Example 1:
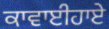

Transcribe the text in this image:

ਕਾਵਾਈਹਾਏ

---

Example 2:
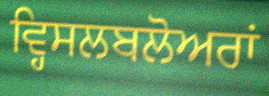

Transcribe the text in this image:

ਵ੍ਹਿਸਲਬਲੋਅਰਾਂ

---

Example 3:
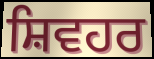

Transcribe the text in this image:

ਸ਼ਿਵਹਰ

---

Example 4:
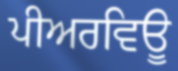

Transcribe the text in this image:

ਪੀਅਰਵਿਊ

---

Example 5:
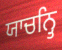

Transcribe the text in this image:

ਯਾਚਨ੍ਤਿ